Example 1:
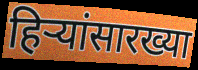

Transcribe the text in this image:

हिऱ्यांसारख्या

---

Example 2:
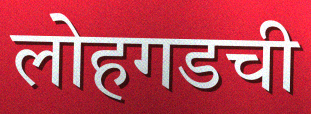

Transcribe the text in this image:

लोहगडची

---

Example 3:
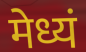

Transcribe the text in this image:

मेध्यं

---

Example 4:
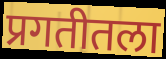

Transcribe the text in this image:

प्रगतीतला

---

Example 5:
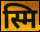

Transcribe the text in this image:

स्मि